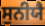
ਸੁਨੀਯੈ